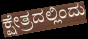
ಕ್ಷೇತ್ರದಲ್ಲಿಂದು